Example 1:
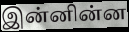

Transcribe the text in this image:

இன்னின்ன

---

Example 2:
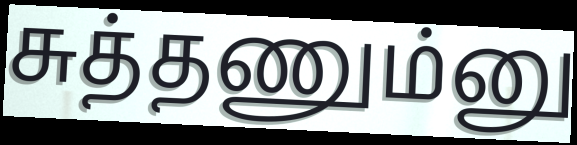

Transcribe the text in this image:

சுத்தணும்னு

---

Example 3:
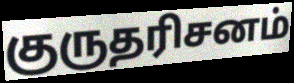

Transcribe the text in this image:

குருதரிசனம்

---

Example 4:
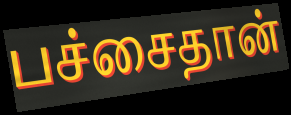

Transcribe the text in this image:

பச்சைதான்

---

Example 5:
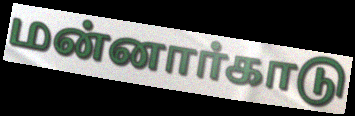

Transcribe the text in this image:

மன்னார்காடு